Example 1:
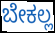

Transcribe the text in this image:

ಬೇಕಲ್ಲ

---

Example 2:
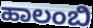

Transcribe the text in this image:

ಹಾಲಂಬಿ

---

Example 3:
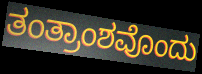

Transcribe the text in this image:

ತಂತ್ರಾಂಶವೊಂದು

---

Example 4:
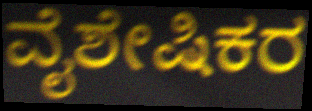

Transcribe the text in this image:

ವೈಶೇಷಿಕರ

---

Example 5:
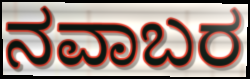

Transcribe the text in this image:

ನವಾಬರ